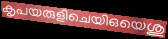
കൃപയരുളിചെയിഒയെശു